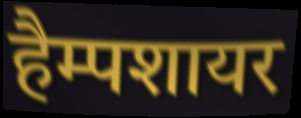
हैम्पशायर